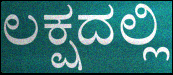
ಲಕ್ಷದಲ್ಲಿ